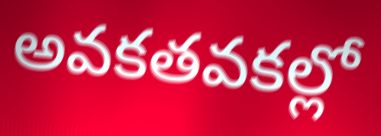
అవకతవకల్లో